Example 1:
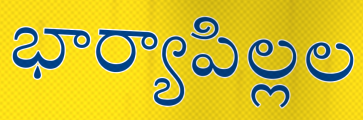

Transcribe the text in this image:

భార్యాపిల్లల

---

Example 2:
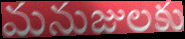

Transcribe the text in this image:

మనుజులకు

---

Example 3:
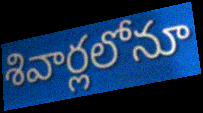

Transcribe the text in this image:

శివార్లలోనూ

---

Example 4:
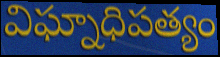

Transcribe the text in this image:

విఘ్నాధిపత్యం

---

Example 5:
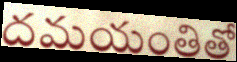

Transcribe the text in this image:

దమయంతితో